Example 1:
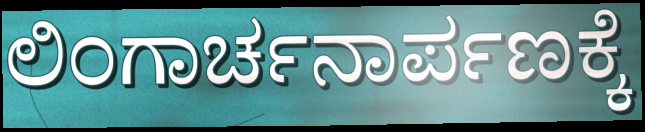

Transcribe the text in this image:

ಲಿಂಗಾರ್ಚನಾರ್ಪಣಕ್ಕೆ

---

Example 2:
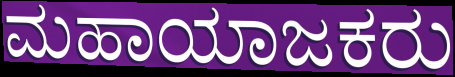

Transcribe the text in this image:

ಮಹಾಯಾಜಕರು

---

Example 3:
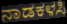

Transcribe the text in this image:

ನಾಡಕಳಸಿ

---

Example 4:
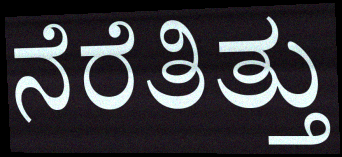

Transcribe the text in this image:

ನೆರೆತಿತ್ತು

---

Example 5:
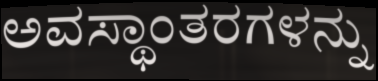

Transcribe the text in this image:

ಅವಸ್ಥಾಂತರಗಳನ್ನು